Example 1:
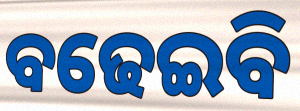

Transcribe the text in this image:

ବଢେଇବି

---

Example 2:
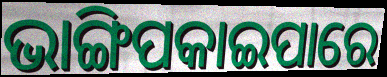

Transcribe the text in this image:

ଭାଙ୍ଗିପକାଇପାରେ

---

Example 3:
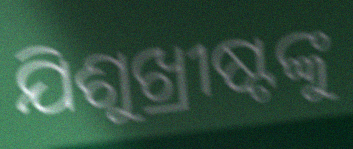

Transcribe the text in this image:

ଯିଶୁଖ୍ରୀଷ୍ଟଙ୍କୁ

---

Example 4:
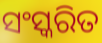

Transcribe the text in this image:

ସଂସ୍କରିତ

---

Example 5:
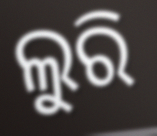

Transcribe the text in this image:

ଲୁରି